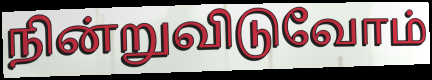
நின்றுவிடுவோம்